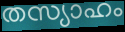
തസ്യാഹം